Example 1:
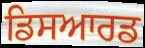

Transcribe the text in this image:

ਡਿਸਆਰਡ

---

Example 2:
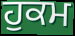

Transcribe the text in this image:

ਹੁਕਮ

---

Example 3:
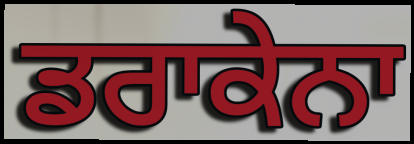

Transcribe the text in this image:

ਡਰਾਕੇਨਾ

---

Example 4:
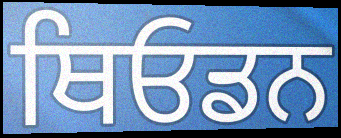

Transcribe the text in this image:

ਥਿਓਡਨ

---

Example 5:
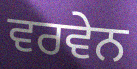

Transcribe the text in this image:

ਵਰਵੇਨ